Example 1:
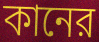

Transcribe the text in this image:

কানের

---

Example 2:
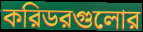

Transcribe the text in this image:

করিডরগুলোর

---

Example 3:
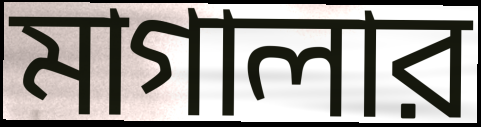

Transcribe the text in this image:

মাগালার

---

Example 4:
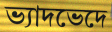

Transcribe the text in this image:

ভ্যাদভেদে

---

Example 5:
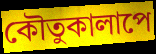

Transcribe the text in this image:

কৌতুকালাপে